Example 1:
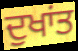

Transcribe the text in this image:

ਦੁਖਾਂਤ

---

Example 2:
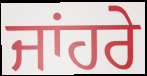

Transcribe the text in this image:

ਜਾਂਹਰੇ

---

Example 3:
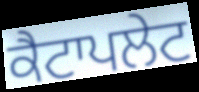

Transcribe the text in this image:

ਕੈਟਾਪਲੇਟ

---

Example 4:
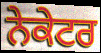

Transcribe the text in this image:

ਨੇਕੇਟਰ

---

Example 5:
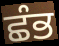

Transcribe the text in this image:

ਛੰਭ